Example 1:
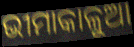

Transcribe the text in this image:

ଭୀମାକାଳୁଆ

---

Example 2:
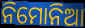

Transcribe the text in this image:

ନିମୋନିଆ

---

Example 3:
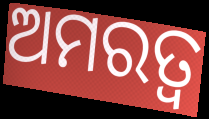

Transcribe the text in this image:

ଅମରତ୍ବ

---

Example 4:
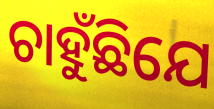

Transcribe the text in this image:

ଚାହୁଁଛିଯେ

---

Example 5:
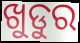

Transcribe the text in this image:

ଖୁଡୁର